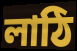
লাঠি